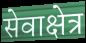
सेवाक्षेत्र